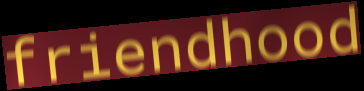
friendhood